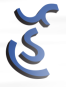
ર્હૅ